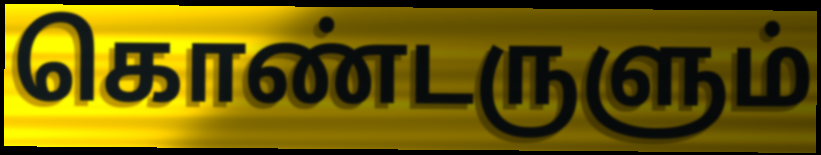
கொண்டருளும்